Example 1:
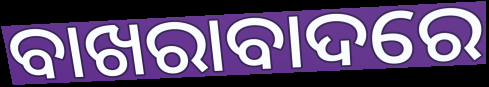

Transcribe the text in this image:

ବାଖରାବାଦରେ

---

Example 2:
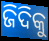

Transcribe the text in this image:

ଜିଦିକୁ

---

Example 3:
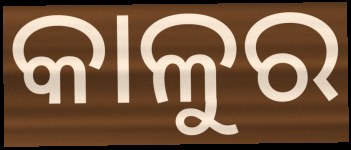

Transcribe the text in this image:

କାଳୁର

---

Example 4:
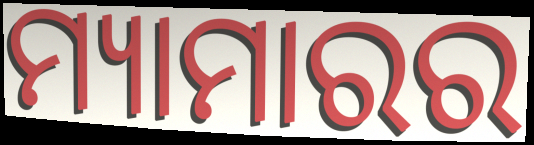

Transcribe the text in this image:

ମ୍ୟାମାରର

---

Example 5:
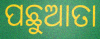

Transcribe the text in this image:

ପଛୁଆତା